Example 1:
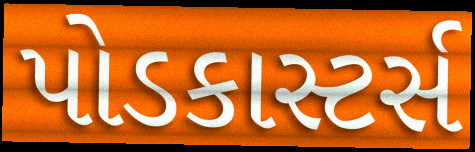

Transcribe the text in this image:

પોડકાસ્ટર્સ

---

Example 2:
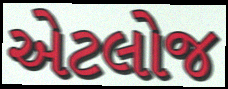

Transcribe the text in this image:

એટલોજ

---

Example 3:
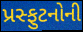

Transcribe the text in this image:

પ્રસ્ફુટનોની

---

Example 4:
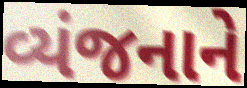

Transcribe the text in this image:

વ્યંજનાને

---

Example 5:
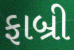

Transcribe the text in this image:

ફાબ્રી